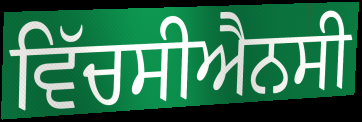
ਵਿੱਚਸੀਐਨਸੀ